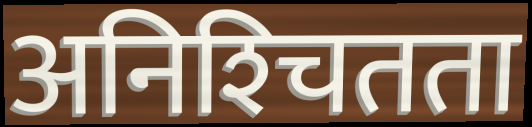
अनिश्‍चितता